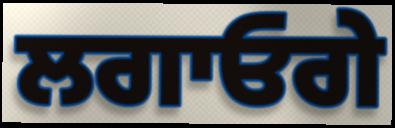
ਲਗਾਓਗੇ